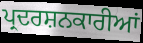
ਪ੍ਰਦਰਸ਼ਨਕਾਰੀਆਂ